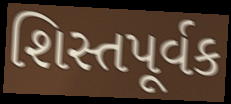
શિસ્તપૂર્વક